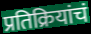
प्रतिक्रियांचं